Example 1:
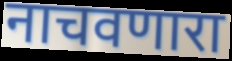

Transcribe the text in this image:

नाचवणारा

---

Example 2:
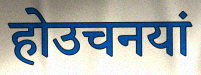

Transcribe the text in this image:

होउचनयां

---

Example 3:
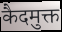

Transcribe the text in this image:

कैदमुक्त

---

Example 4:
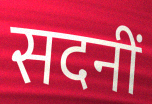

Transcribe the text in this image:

सदनीं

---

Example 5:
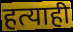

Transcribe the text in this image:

हत्याही